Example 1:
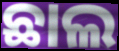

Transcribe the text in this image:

ଛାଲ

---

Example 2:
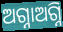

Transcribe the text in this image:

ଅଗ୍ନାଅଗ୍ନି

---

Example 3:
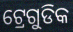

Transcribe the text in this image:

ଟ୍ରେଗୁଡିକ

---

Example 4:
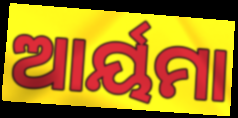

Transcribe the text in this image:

ଆର୍ୟମା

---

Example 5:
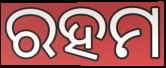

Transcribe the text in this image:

ରହମ